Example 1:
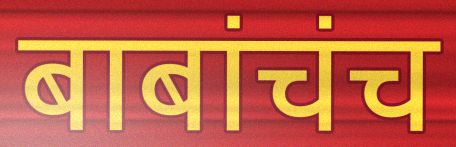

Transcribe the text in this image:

बाबांचंच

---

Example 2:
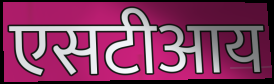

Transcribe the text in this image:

एसटीआय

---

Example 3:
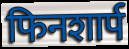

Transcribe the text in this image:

फिनशार्प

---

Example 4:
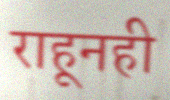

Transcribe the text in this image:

राहूनही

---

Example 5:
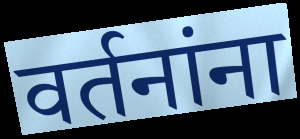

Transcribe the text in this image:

वर्तनांना